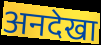
अनदेखा